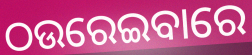
ଠଉରେଇବାରେ